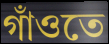
গাঁওতে